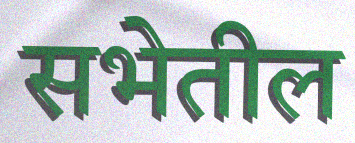
सभेतील